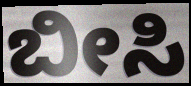
ಬೀಸಿ